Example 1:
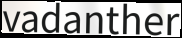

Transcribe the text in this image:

vadanther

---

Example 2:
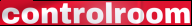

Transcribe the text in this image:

controlroom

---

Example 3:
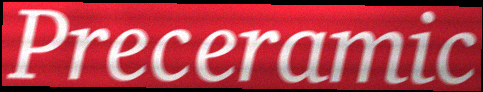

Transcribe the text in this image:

Preceramic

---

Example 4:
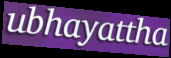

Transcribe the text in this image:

ubhayattha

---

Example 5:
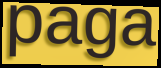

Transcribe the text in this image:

paga